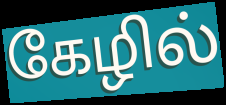
கேழில்